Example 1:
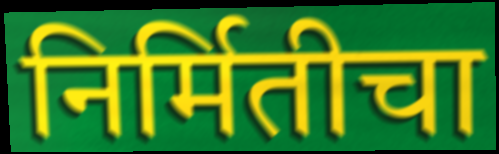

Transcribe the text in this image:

निर्मितीचा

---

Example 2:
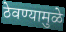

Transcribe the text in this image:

ठेवण्यामुळे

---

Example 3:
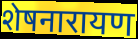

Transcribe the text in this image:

शेषनारायण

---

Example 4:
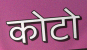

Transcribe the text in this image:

कोटो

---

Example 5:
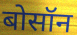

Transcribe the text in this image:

बोसॉन